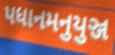
પધાનમનુયુઞ્જ